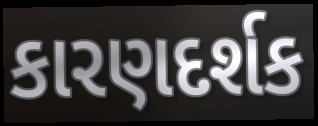
કારણદર્શક